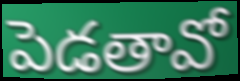
పెడతావో